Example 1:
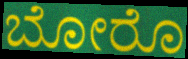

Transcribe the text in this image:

ಬೋರೊ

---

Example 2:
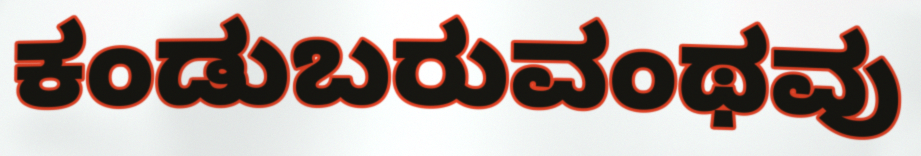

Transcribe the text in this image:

ಕಂಡುಬರುವಂಥವು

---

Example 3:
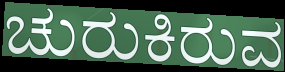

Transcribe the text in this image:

ಚುರುಕಿರುವ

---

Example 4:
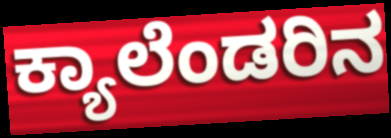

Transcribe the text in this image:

ಕ್ಯಾಲೆಂಡರಿನ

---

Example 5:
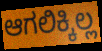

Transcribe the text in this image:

ಆಗಲಿಕ್ಕಿಲ್ಲ